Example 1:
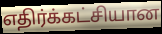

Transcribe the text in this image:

எதிர்க்கட்சியான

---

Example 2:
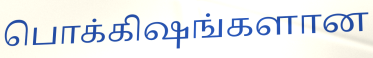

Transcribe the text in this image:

பொக்கிஷங்களான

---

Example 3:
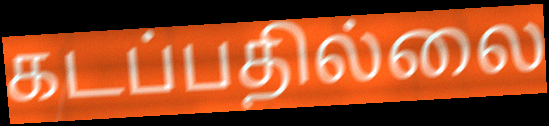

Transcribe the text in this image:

கடப்பதில்லை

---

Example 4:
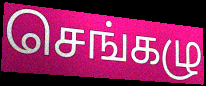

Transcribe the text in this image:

செங்கழு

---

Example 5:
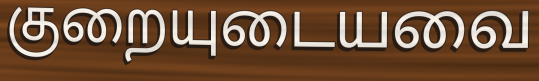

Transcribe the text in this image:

குறையுடையவை